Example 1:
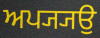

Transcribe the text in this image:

ਅਪ੍ਯ੍ਯਉ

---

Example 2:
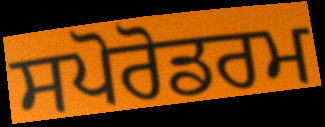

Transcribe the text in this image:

ਸਪੋਰੋਡਰਮ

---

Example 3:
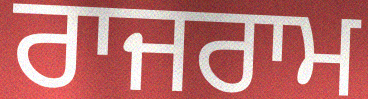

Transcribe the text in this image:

ਰਾਜਰਾਮ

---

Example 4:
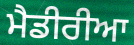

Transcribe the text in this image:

ਮੈਡੀਰੀਆ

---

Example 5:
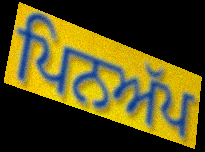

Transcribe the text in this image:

ਪਿਨਅੱਪ